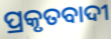
ପ୍ରକୃତବାଦୀ